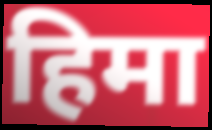
हिमा